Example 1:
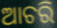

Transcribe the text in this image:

ଆଚରି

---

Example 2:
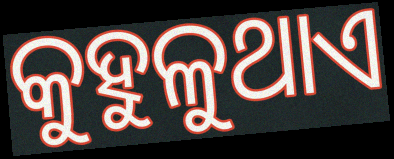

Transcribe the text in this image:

କୁହୁଳୁଥାଏ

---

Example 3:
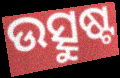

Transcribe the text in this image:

ଉତ୍ସୁଷ୍ଟ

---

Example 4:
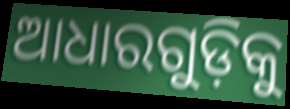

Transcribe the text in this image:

ଆଧାରଗୁଡ଼ିକୁ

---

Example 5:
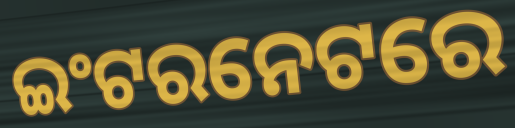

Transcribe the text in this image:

ଇଂଟରନେଟରେ